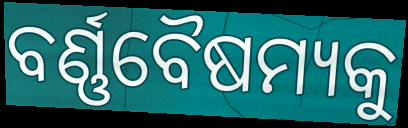
ବର୍ଣ୍ଣବୈଷମ୍ୟକୁ